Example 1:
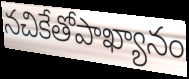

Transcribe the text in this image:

నచికేతోపాఖ్యానం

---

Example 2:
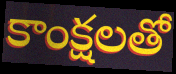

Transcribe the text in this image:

కాంక్షలతో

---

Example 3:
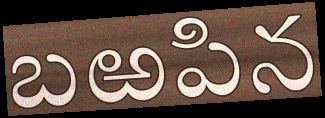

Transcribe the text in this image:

బఱపిన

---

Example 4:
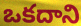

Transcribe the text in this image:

ఒకదాని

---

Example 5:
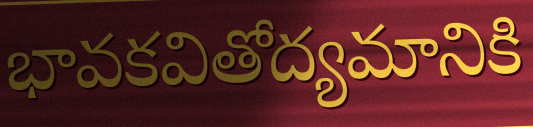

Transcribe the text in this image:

భావకవితోద్యమానికి